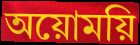
অয়োময়ি